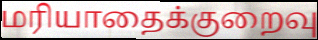
மரியாதைக்குறைவு